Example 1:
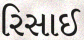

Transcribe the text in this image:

રિસાઈ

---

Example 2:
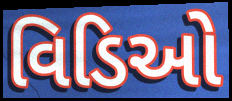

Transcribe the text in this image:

વિડિઓ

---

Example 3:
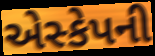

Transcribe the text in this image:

એસ્કેપની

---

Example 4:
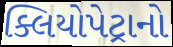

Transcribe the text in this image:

ક્લિયોપેટ્રાનો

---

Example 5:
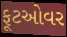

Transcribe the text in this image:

ફૂટઓવર